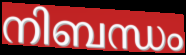
നിബന്ധം